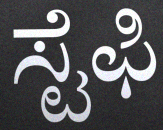
ಸ್ಟೆಫಿ